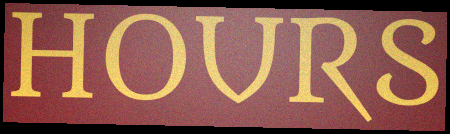
HOURS